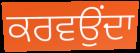
ਕਰਵਉਂਦਾ